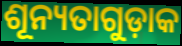
ଶୂନ୍ୟତାଗୁଡ଼ାକ